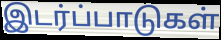
இடர்ப்பாடுகள்